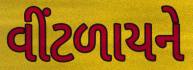
વીંટળાયને